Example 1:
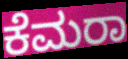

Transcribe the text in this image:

ಕೆಮರಾ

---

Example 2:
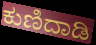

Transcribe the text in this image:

ಕುಣಿದಾಡಿ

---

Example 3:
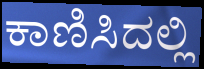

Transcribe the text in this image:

ಕಾಣಿಸಿದಲ್ಲಿ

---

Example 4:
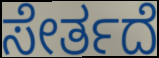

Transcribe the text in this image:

ಸೇರ್ತದೆ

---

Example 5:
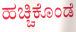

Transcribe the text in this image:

ಹಚ್ಚಿಕೊಂಡೆ